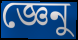
জ্ঞেনু